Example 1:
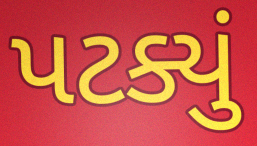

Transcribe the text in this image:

પટક્યું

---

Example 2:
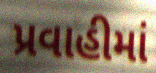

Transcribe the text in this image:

પ્રવાહીમાં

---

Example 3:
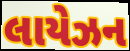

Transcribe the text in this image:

લાયેઝન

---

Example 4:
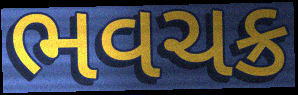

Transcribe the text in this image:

ભવચક્ર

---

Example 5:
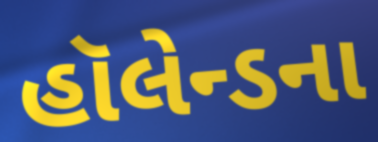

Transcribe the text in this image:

હૉલેન્ડના